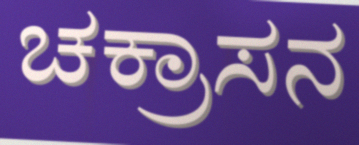
ಚಕ್ರಾಸನ